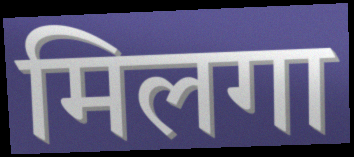
मिलगा